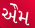
એેમ